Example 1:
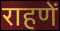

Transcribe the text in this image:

राहणें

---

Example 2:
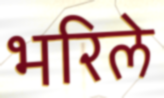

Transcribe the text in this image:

भरिले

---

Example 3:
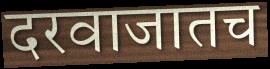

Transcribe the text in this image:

दरवाजातच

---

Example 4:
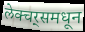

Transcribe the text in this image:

लेक्चर्समधून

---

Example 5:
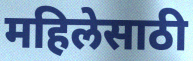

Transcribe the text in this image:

महिलेसाठी